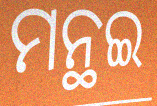
ମନ୍ଥଇ